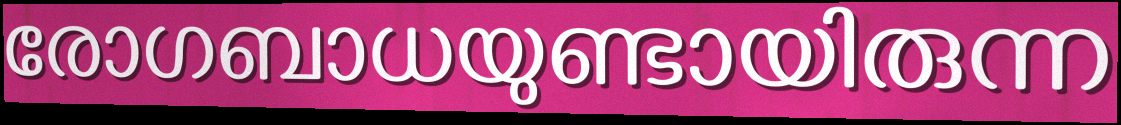
രോഗബാധയുണ്ടായിരുന്ന